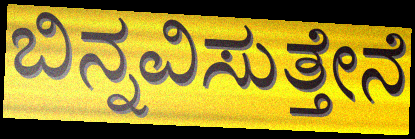
ಬಿನ್ನವಿಸುತ್ತೇನೆ